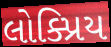
લોક્પ્રિય